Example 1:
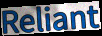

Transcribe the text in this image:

Reliant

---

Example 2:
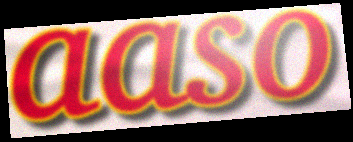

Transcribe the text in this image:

aaso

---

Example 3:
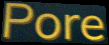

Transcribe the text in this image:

Pore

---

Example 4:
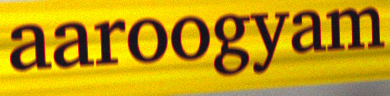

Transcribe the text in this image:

aaroogyam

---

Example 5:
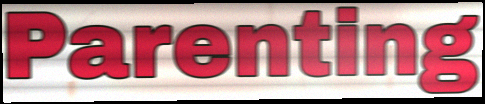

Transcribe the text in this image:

Parenting